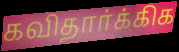
கவிதார்க்கிக